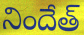
నిందేత్